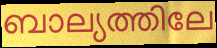
ബാല്യത്തിലേ